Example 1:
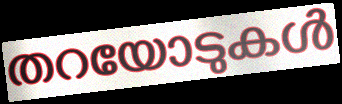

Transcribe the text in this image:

തറയോടുകൾ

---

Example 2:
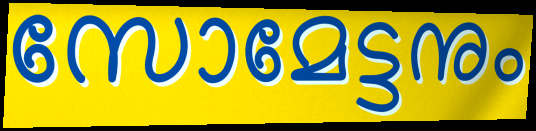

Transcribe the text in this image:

സോമേട്ടനും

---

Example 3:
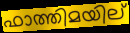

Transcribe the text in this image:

ഫാത്തിമയില്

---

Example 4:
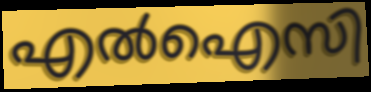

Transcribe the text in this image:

എൽഐസി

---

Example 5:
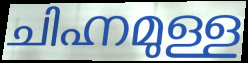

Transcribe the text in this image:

ചിഹ്നമുള്ള